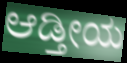
ಆಡ್ತೀಯ